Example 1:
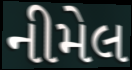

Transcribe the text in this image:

નીમેલ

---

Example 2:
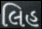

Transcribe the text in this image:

લિહ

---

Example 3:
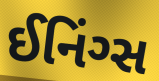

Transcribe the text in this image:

ઈનિંગ્સ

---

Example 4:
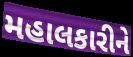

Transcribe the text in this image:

મહાલકારીને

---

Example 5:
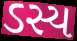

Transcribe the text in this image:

ઽસ્ય